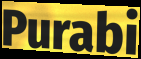
Purabi